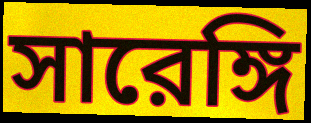
সারেঙ্গি